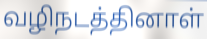
வழிநடத்தினாள்